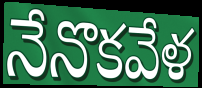
నేనొకవేళ